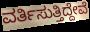
ವರ್ತಿಸುತ್ತಿದ್ದೇವೆ